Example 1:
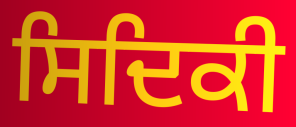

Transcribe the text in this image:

ਸਿਦਿਕੀ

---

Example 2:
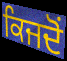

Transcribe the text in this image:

ਕਿਜਦੋਂ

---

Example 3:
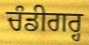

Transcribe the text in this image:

ਚੰਡੀਗਰ੍ਹ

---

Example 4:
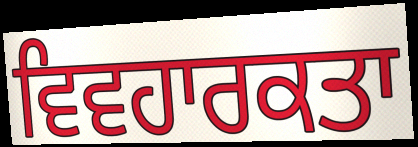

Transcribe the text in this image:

ਵਿਵਹਾਰਕਤਾ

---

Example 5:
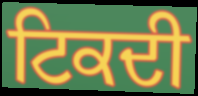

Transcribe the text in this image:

ਟਿਕਦੀ